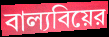
বাল্যবিয়ের